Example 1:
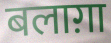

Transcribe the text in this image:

बलाग़ा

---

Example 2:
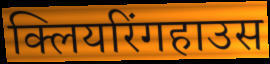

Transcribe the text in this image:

क्लियरिंगहाउस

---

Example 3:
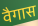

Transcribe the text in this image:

वैगास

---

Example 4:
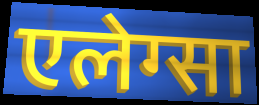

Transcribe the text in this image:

एलेग्सा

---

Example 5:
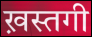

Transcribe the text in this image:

ख़स्तगी